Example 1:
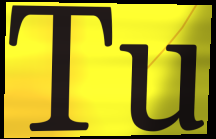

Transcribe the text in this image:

Tu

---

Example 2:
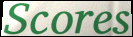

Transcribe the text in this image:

Scores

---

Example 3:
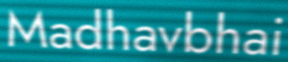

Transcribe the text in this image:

Madhavbhai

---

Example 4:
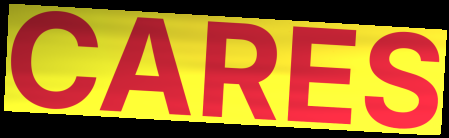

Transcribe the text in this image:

CARES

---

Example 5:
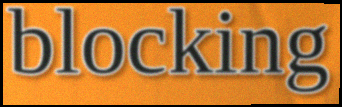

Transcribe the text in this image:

blocking